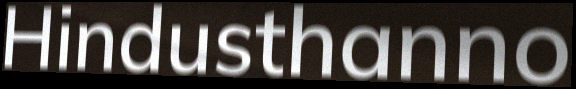
Hindusthanno